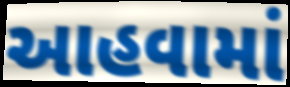
આહવામાં